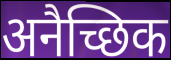
अनैच्छिक